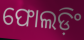
ଫୋଲଡ଼ିଂ